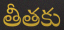
తీతకు